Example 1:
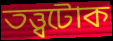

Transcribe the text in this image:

তত্ত্বটোক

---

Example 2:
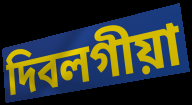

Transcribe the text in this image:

দিবলগীয়া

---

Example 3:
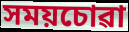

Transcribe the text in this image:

সময়চোৱা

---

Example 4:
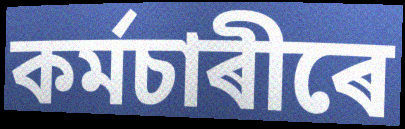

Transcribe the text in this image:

কৰ্মচাৰীৰে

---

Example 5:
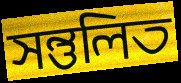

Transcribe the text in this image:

সন্তুলিত